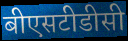
बीएसटीडीसी